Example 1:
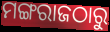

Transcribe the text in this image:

ମଙ୍ଗରାଜଠାରୁ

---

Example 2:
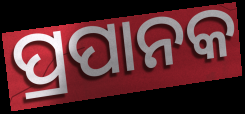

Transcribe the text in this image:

ପ୍ରପାନକ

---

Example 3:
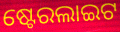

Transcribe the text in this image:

ଷ୍ଟେରଲାଇଟ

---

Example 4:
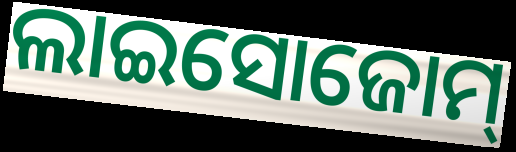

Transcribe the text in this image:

ଲାଇସୋଜୋମ୍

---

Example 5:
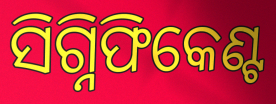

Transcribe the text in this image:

ସିଗ୍ନିଫିକେଣ୍ଟ